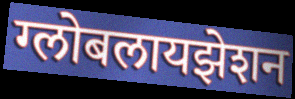
ग्लोबलायझेशन